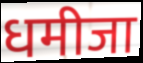
धमीजा